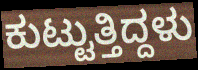
ಕುಟ್ಟುತ್ತಿದ್ದಳು